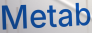
Metab